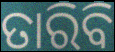
ତାରିବି